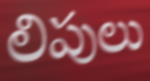
లిపులు